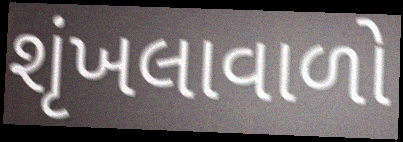
શૃંખલાવાળો